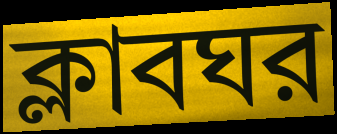
ক্লাবঘর